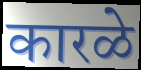
कारळे